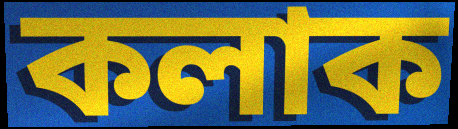
কলাক